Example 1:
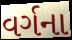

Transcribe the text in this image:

વર્ગના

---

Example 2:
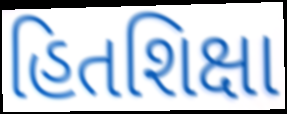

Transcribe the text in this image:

હિતશિક્ષા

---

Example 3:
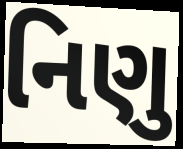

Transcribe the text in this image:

નિણુ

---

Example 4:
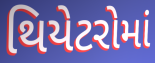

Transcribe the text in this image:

થિયેટરોમાં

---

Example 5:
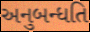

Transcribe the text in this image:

અનુબન્ધતિ